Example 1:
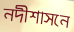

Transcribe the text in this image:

নদীশাসনে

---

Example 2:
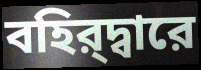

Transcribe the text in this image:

বহির্‌দ্বারে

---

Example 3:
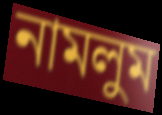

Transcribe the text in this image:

নামলুম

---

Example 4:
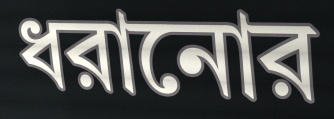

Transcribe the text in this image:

ধরানোর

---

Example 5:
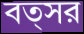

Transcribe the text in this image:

বত্সর